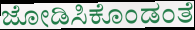
ಜೋಡಿಸಿಕೊಂಡಂತೆ